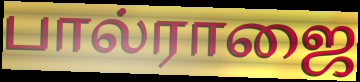
பால்ராஜை